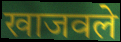
खाजवले